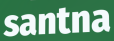
santna